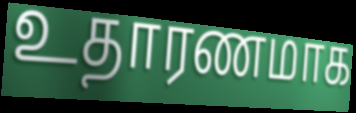
உதாரணமாக